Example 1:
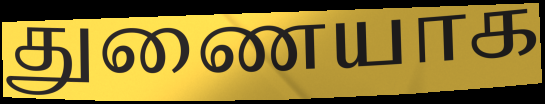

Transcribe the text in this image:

துணையாக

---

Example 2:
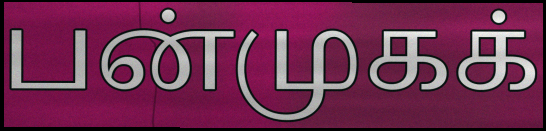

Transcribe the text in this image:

பன்முகக்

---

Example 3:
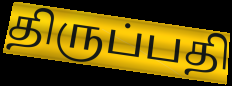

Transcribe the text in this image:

திருப்பதி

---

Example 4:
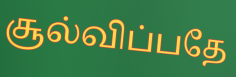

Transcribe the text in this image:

சூல்விப்பதே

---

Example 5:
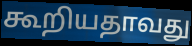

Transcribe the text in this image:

கூறியதாவது